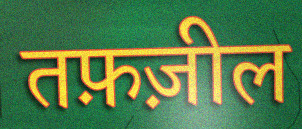
तफ़ज़ील